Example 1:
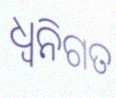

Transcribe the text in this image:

ଧ୍ଵନିଗତ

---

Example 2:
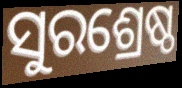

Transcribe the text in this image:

ସୁରଶ୍ରେଷ୍ଠ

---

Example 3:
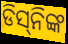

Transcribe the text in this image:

ଡିସ୍‌ନିଙ୍କ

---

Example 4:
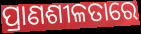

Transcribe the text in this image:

ପ୍ରାଣଶୀଳତାରେ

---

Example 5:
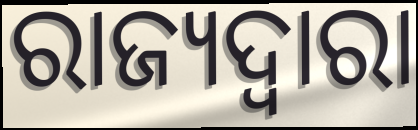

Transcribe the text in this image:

ରାଜ୍ୟଦ୍ୱାରା